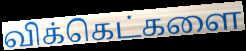
விக்கெட்களை